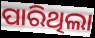
ପାରିଥିଲା